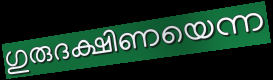
ഗുരുദക്ഷിണയെന്ന